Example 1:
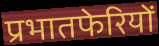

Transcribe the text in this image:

प्रभातफेरियों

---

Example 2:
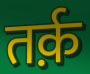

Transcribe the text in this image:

तर्क़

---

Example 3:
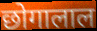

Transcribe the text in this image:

छोगालाल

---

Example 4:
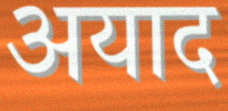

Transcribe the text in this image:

अयाद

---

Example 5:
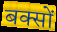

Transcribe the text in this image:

बक्सों